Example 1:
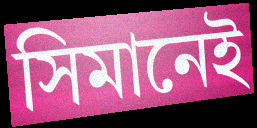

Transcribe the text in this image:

সিমানেই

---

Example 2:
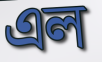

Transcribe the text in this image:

এল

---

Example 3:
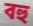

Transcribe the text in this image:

বহু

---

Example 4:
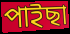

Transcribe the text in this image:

পাইছা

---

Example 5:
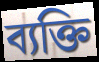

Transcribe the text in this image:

ব্যক্তি